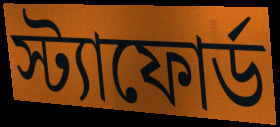
স্ট্যাফোর্ড